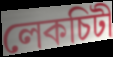
লেকচিটী